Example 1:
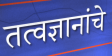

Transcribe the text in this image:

तत्वज्ञानांचे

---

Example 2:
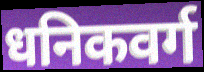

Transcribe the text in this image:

धनिकवर्ग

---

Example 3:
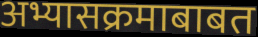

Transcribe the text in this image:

अभ्यासक्रमाबाबत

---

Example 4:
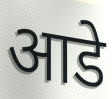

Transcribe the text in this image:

आडे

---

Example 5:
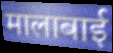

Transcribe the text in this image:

मालाबाई